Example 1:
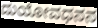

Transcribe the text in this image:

ದುಯೋವಧನನ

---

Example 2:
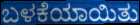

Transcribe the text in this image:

ಬಳಕೆಯಾಯಿತು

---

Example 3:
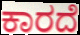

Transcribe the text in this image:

ಕಾರದೆ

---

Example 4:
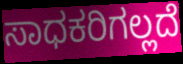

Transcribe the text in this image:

ಸಾಧಕರಿಗಲ್ಲದೆ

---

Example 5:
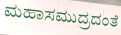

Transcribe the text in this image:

ಮಹಾಸಮುದ್ರದಂತೆ